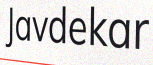
Javdekar